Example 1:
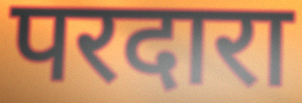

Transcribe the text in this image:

परदारा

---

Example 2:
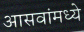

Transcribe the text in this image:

आसवांमध्ये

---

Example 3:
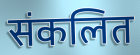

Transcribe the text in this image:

संकलित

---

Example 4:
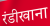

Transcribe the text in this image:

रंडीखाना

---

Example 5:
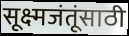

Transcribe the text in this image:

सूक्ष्मजंतूंसाठी